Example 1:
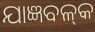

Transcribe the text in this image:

ଯାଜ୍ଞବଳ୍‌କ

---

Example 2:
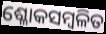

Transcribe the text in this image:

ଶ୍ଳୋକସମ୍ବଳିତ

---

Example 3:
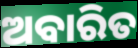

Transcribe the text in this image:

ଅବାରିତ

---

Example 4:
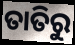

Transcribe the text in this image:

ତାତିରୁ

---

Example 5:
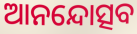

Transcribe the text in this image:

ଆନନ୍ଦୋତ୍ସବ